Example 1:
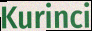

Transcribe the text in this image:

Kurinci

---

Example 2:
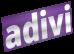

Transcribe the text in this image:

adivi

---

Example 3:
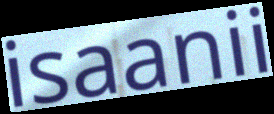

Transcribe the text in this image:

isaanii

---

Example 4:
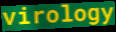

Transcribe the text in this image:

virology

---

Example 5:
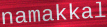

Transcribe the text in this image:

namakkal